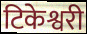
टिकेश्वरी